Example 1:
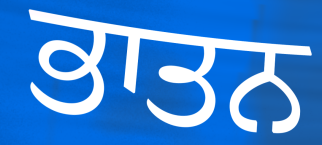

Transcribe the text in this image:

ਭਾਤਨ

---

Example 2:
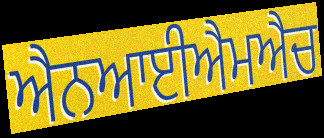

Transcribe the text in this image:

ਐਨਆਈਐਮਐਚ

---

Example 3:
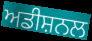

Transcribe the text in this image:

ਅਡੀਸ਼ਨਲ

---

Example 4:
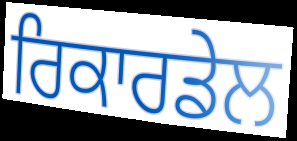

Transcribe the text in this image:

ਰਿਕਾਰਡੇਲ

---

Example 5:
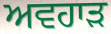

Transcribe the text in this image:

ਅਵਹਾੜ